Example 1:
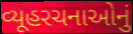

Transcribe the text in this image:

વ્યૂહરચનાઓનું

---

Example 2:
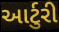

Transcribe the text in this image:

આર્ટુરી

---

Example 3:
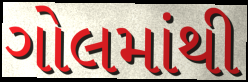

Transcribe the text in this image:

ગોલમાંથી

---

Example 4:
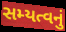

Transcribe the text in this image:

સમ્યત્વનું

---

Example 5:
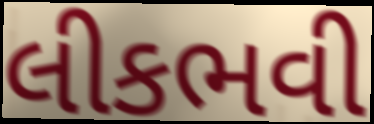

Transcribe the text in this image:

લીકભવી